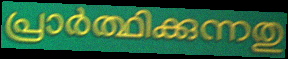
പ്രാർത്ഥിക്കുന്നതു